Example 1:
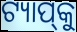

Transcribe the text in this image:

ଟ୍ୟାପ୍‌କୁ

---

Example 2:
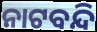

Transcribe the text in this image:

ନାଟବନ୍ଦି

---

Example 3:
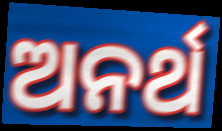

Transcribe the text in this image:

ଅନର୍ଥ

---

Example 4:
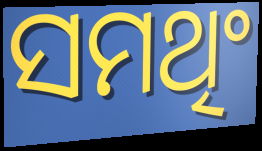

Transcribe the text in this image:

ସମଥିଂ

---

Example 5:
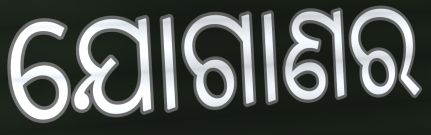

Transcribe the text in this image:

ଯୋଗାଣର